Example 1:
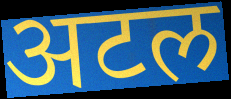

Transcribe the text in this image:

अटल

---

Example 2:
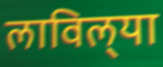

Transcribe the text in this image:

लाविल्या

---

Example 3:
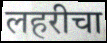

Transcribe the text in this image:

लहरीचा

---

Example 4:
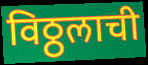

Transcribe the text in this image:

विठ्ठलाची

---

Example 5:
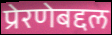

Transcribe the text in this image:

प्रेरणेबद्दल